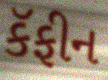
કૅફીન